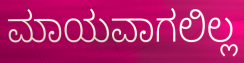
ಮಾಯವಾಗಲಿಲ್ಲ